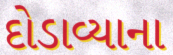
દોડાવ્યાના